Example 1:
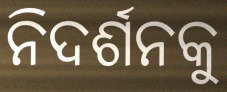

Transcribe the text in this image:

ନିଦର୍ଶନକୁ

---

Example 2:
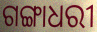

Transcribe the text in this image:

ଗଙ୍ଗାଧରୀ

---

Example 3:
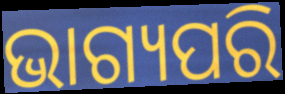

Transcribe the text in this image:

ଭାଗ୍ୟପରି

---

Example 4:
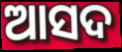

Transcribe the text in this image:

ଆସଦ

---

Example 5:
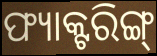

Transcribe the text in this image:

ଫ୍ୟାକ୍ଟରିଙ୍ଗ୍